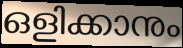
ഒളിക്കാനും